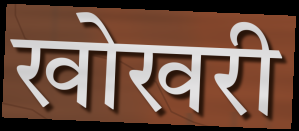
खोखरी